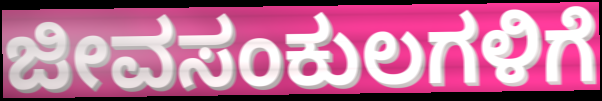
ಜೀವಸಂಕುಲಗಳಿಗೆ